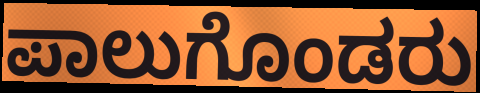
ಪಾಲುಗೊಂಡರು